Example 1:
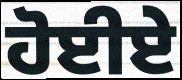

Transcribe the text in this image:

ਹੋਈਏ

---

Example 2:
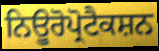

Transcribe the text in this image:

ਨਿਊਰੋਪ੍ਰੋਟੈਕਸ਼ਨ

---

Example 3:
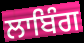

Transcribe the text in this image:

ਲਾਬਿੰਗ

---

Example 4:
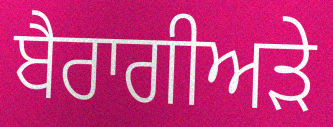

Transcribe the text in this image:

ਬੈਰਾਗੀਅੜੇ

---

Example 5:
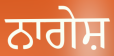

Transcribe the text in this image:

ਨਾਗੇਸ਼